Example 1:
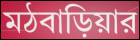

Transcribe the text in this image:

মঠবাড়িয়ার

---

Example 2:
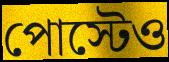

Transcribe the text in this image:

পোস্টেও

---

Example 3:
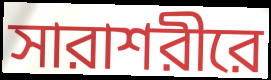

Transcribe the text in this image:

সারাশরীরে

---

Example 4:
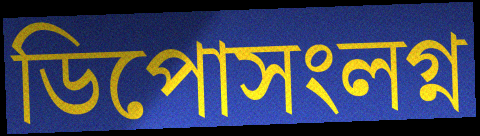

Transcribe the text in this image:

ডিপোসংলগ্ন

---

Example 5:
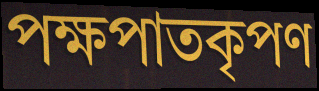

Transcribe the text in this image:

পক্ষপাতকৃপণ